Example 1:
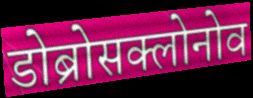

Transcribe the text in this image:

डोब्रोसक्लोनोव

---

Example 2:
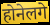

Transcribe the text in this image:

होनेलगे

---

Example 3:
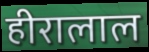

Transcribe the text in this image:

हीरालाल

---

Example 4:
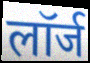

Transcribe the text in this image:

लॉर्ज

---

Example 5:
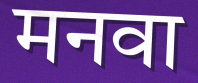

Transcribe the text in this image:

मनवा